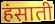
हंसाती